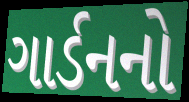
ગાર્ડનનો